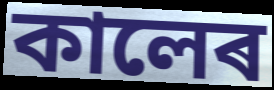
কালেৰ